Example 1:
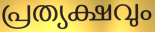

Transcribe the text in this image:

പ്രത്യക്ഷവും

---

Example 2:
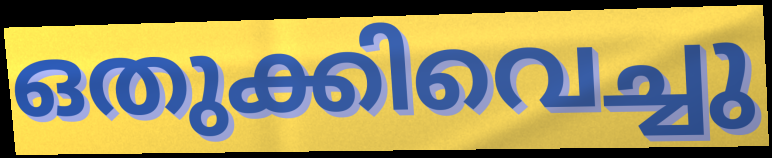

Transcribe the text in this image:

ഒതുക്കിവെച്ചു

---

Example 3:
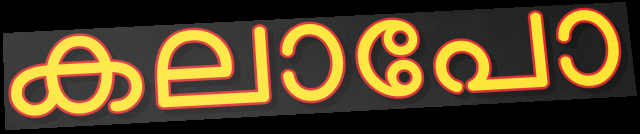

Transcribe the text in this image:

കലാപോ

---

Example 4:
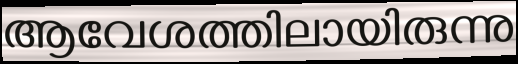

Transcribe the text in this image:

ആവേശത്തിലായിരുന്നു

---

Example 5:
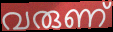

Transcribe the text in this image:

വരുണ്